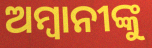
ଅମ୍ବାନୀଙ୍କୁ